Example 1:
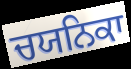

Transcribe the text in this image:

ਚਯਨਿਕਾ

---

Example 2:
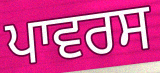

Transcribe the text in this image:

ਪਾਵਰਸ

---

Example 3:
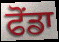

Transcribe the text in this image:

ਫੋਂਡਾ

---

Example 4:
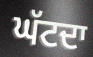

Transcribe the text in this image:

ਘੱਟਦਾ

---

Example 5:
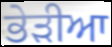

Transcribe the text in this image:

ਭੇੜੀਆ